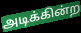
அடிக்கின்ற